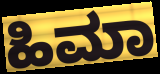
ಹಿಮಾ